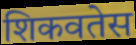
शिकवतेस